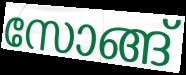
സോങ്ങ്